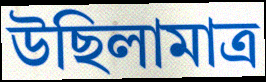
উছিলামাত্র